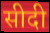
सीदी